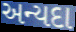
અન્યદા